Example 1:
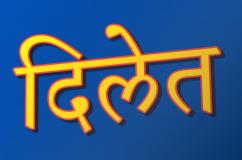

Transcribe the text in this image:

दिलेत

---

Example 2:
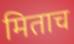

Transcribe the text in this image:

मिताच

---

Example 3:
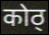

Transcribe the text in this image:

कोठ्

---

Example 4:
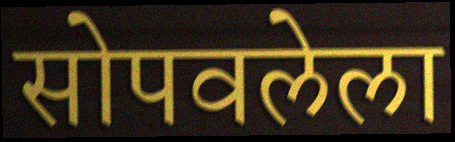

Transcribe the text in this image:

सोपवलेला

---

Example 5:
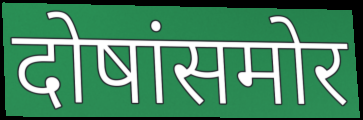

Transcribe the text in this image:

दोषांसमोर